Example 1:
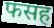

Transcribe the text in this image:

फसह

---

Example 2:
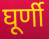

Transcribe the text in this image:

घूर्णी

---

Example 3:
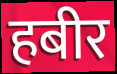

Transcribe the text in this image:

हबीर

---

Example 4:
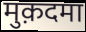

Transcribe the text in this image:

मुक़दमा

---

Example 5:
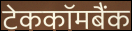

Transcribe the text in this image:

टेककॉमबैंक